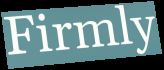
Firmly